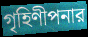
গৃহিণীপনার